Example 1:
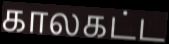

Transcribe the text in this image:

காலகட்ட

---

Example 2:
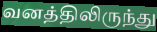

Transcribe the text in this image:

வனத்திலிருந்து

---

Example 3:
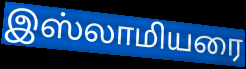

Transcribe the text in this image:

இஸ்லாமியரை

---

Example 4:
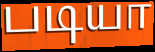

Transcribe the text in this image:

படியா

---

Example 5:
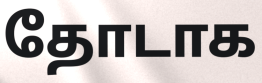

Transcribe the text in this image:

தோடாக